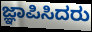
ಜ್ಞಾಪಿಸಿದರು